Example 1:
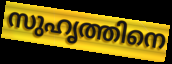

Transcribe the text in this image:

സുഹൃത്തിനെ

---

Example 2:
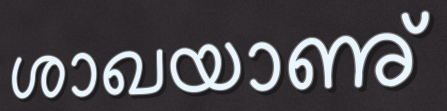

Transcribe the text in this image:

ശാഖയാണു്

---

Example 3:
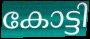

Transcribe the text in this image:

കോട്ടി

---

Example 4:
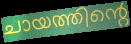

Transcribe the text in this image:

ചായത്തിന്റെ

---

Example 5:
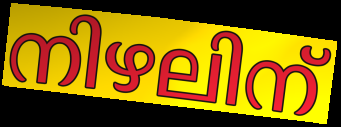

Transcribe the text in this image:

നിഴലിന്